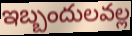
ఇబ్బందులవల్ల